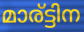
മാര്ട്ടിന